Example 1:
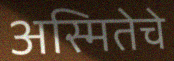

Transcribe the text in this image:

अस्मितेचे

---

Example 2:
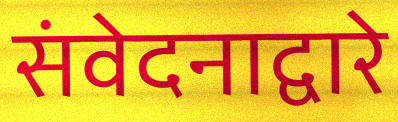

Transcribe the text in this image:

संवेदनाद्वारे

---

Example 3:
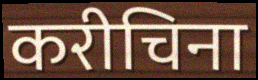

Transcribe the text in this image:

करीचिना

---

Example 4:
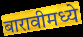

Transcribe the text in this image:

बारावीमध्ये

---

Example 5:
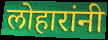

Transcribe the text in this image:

लोहारांनी